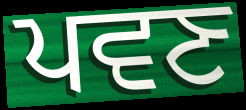
ਪਵਣ